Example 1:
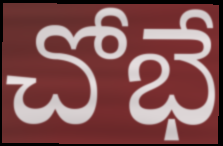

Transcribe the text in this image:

చోభే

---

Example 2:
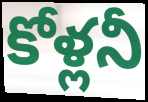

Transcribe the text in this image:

కోళ్లనీ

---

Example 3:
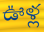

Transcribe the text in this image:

ఊళ్ల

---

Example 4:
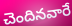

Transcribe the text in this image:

చెందినవారే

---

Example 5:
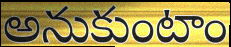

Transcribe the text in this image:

అనుకుంటాం